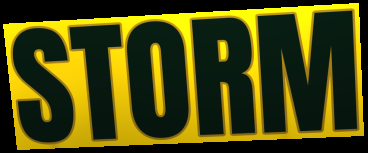
STORM